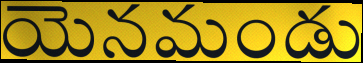
యెనమండు